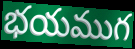
భయముగ